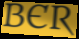
BER